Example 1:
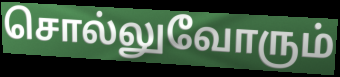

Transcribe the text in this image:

சொல்லுவோரும்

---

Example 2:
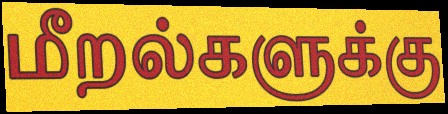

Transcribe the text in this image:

மீறல்களுக்கு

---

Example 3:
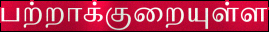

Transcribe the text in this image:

பற்றாக்குறையுள்ள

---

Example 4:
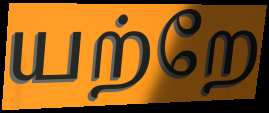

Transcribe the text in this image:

யற்றே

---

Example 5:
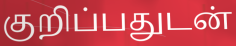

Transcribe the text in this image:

குறிப்பதுடன்